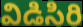
విడిసిరి